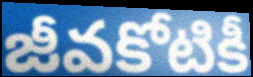
జీవకోటికీ